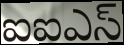
ఐఐఎస్